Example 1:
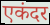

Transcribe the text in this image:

एकंदर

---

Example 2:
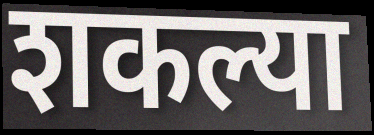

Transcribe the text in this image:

शकल्या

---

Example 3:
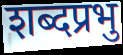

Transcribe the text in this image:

शब्दप्रभु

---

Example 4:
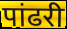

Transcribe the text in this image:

पांढरी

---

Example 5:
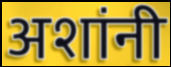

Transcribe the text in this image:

अशांनी